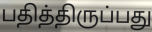
பதித்திருப்பது